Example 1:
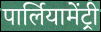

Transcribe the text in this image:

पार्लियामेंट्री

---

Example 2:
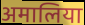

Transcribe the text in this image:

अमालिया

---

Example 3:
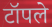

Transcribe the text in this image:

टॉपले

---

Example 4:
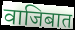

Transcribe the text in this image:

वाजिबात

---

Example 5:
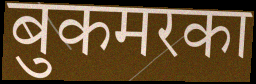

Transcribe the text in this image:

बुकमरका